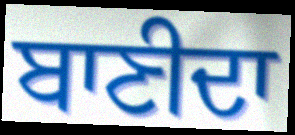
ਬਾਣੀਦਾ